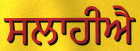
ਸਲਾਹੀਐ